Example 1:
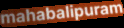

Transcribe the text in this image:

mahabalipuram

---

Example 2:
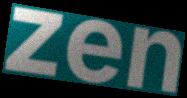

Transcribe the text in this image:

zen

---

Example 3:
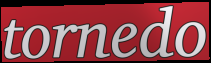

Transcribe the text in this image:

tornedo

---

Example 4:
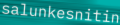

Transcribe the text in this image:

salunkesnitin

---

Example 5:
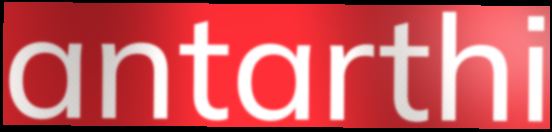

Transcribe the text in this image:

antarthi